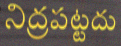
నిద్రపట్టదు